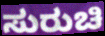
ಸುರುಚಿ